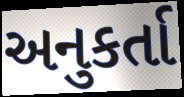
અનુકર્તા